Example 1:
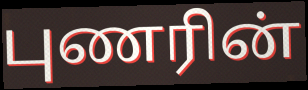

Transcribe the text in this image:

புணரின்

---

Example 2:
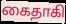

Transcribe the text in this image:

கைதாகி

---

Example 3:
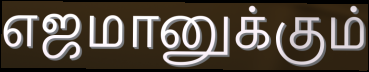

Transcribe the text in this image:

எஜமானுக்கும்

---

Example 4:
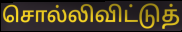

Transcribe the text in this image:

சொல்லிவிட்டுத்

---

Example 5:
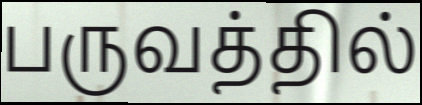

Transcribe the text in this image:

பருவத்தில்